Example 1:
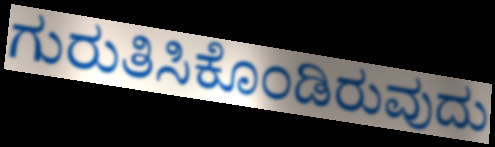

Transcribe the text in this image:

ಗುರುತಿಸಿಕೊಂಡಿರುವುದು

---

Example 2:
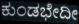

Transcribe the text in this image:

ಕುಂಡಭೇದೀ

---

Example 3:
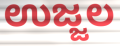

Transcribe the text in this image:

ಉಜ್ಜಲ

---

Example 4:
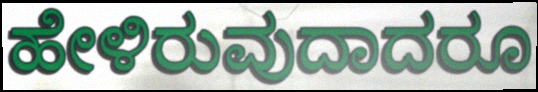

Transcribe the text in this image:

ಹೇಳಿರುವುದಾದರೂ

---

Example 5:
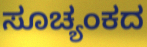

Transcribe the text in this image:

ಸೂಚ್ಯಂಕದ